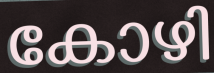
കോഴി